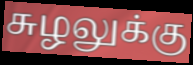
சுழலுக்கு